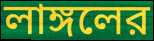
লাঙ্গলের